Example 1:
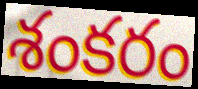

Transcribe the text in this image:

శంకరం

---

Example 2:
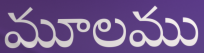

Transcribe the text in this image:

మూలము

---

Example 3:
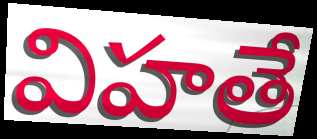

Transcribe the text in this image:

విహతే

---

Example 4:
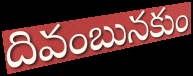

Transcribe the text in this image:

దివంబునకుం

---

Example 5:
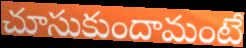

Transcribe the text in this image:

చూసుకుందామంటే